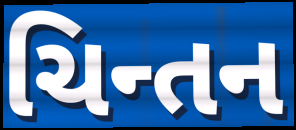
ચિન્તન